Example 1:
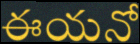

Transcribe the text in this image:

ఈయనో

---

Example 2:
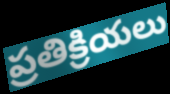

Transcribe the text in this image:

ప్రతిక్రియలు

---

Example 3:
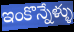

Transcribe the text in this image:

ఇంకొన్నేళ్ళు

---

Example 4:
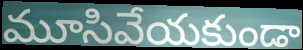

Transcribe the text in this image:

మూసివేయకుండా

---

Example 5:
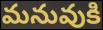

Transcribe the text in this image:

మనువుకి